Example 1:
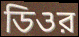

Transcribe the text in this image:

ডিওর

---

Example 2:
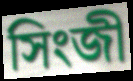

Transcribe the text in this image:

সিংজী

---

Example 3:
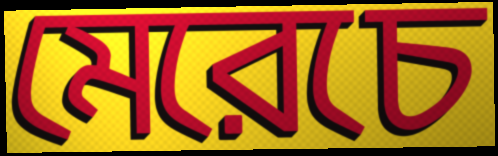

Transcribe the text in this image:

মেরেচে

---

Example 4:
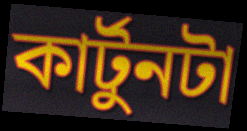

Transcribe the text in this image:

কার্টুনটা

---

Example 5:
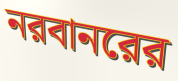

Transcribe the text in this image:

নরবানরের